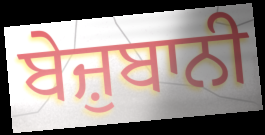
ਬੇਜ਼ੁਬਾਨੀ